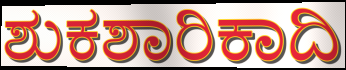
ಶುಕಶಾರಿಕಾದಿ